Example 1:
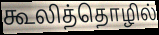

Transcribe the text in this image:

கூலித்தொழில்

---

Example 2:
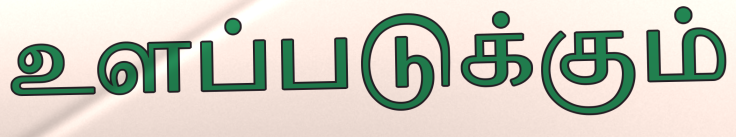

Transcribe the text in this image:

உளப்படுக்கும்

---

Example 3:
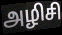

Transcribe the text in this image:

அழிசி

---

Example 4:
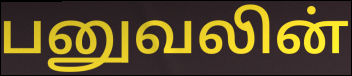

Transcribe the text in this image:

பனுவலின்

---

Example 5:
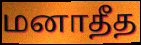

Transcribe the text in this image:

மனாதீத